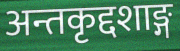
अन्तकृद्दशाङ्ग